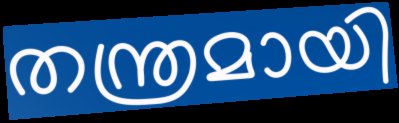
തന്ത്രമായി